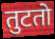
तुटतो